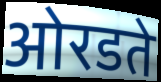
ओरडते